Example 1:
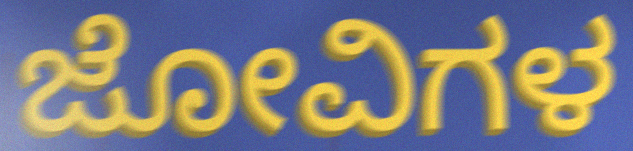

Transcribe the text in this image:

ಜೋವಿಗಳ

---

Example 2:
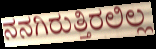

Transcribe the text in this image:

ನನಗಿರುತ್ತಿರಲಿಲ್ಲ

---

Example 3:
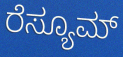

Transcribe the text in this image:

ರೆಸ್ಯೂಮ್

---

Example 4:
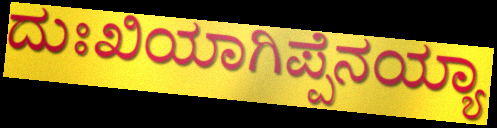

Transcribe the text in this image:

ದುಃಖಿಯಾಗಿಪ್ಪೆನಯ್ಯಾ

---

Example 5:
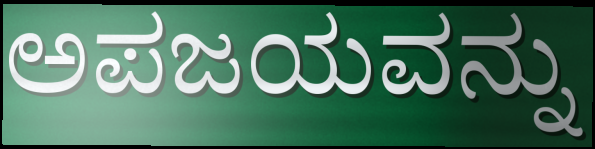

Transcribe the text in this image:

ಅಪಜಯವನ್ನು